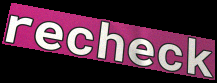
recheck